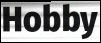
Hobby